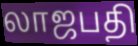
லாஜபதி